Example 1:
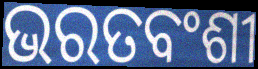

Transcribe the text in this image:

ଭରତବଂଶୀ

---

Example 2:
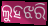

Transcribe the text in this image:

ଲୁହଝରି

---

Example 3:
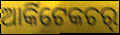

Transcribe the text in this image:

ଆର୍କିଟେକଚର୍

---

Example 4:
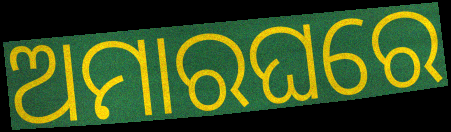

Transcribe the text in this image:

ଅମାରଘରେ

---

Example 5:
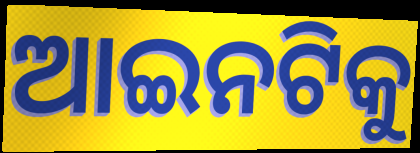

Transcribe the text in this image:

ଆଇନଟିକୁ